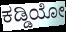
ಕಡ್ಡಿಯೋ